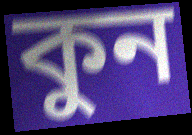
কুন